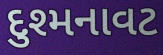
દુશ્મનાવટ